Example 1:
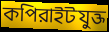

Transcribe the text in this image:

কপিরাইটযুক্ত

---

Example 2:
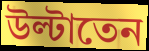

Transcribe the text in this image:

উল্টাতেন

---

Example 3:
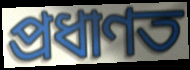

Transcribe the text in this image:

প্রধাণত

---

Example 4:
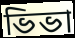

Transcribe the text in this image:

ভিভা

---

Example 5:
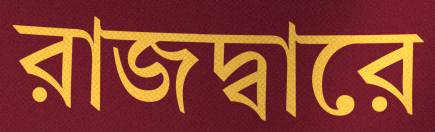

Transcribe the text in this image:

রাজদ্বারে